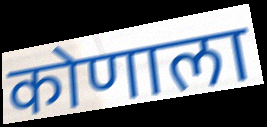
कोणाला